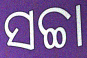
ସଚ୍ଚା